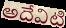
అదేవిటి